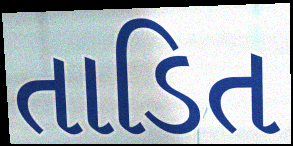
તાડિત